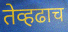
तेव्हढाच